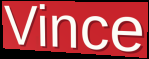
Vince